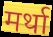
मर्था